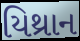
યિથ્રાન